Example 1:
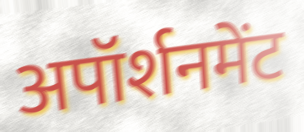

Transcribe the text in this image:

अपॉर्शनमेंट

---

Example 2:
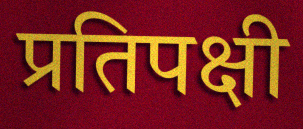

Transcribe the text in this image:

प्रतिपक्षी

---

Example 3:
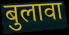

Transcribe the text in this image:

बुलावा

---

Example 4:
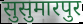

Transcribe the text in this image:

सुसुमारपुर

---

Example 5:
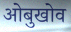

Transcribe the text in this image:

ओबुखोव